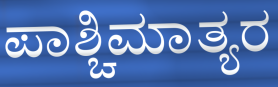
ಪಾಶ್ಚಿಮಾತ್ಯರ